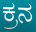
ಕ್ರನ